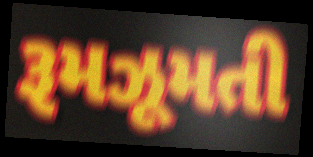
રૂમઝૂમતી